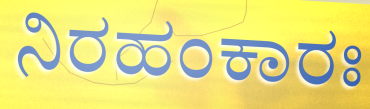
ನಿರಹಂಕಾರಃ